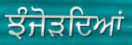
ਝੰਜੋੜਦਿਆਂ